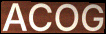
ACOG